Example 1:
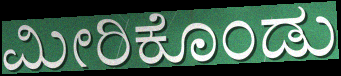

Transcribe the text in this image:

ಮೀರಿಕೊಂಡು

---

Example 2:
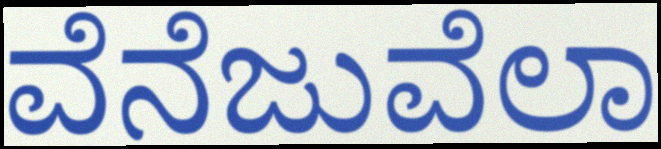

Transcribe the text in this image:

ವೆನೆಜುವೆಲಾ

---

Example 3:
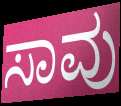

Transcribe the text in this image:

ಸಾವು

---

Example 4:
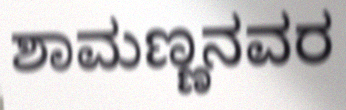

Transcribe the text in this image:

ಶಾಮಣ್ಣನವರ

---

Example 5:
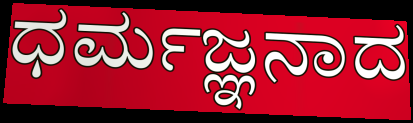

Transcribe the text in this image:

ಧರ್ಮಜ್ಞನಾದ